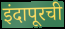
इंदापूरची